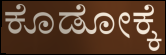
ಕೊಡೋಕ್ಕೆ